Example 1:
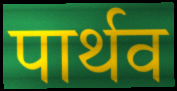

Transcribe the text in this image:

पार्थव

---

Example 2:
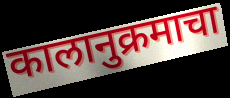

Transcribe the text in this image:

कालानुक्रमाचा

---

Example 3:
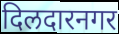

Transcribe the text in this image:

दिलदारनगर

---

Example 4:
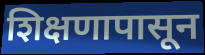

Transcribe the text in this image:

शिक्षणापासून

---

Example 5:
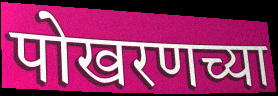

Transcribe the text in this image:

पोखरणच्या